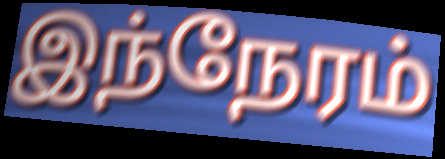
இந்நேரம்